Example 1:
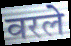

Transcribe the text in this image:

वरले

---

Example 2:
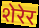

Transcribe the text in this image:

शेरेर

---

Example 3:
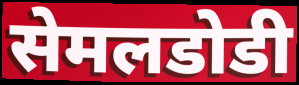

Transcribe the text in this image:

सेमलडोडी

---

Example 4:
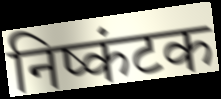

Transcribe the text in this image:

निष्कंटक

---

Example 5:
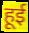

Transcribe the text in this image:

हूई